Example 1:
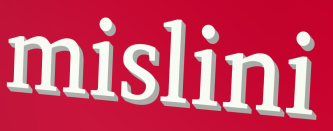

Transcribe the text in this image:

mislini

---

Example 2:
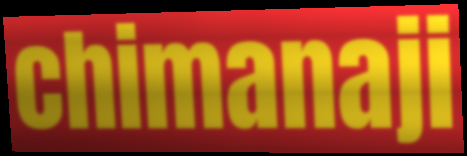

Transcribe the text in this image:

chimanaji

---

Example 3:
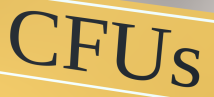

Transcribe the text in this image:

CFUs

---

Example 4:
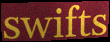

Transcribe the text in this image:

swifts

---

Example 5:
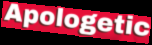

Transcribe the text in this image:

Apologetic